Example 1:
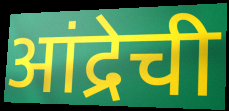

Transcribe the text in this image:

आंद्रेची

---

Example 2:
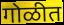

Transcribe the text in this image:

गोळीत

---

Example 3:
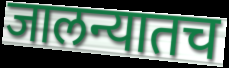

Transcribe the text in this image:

जालन्यातच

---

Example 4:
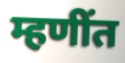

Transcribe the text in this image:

म्हणींत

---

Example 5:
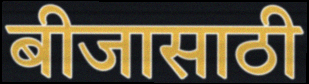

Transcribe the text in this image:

बीजासाठी